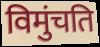
विमुंचति